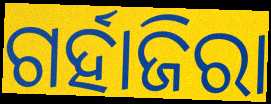
ଗର୍ହାଜିରା